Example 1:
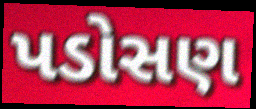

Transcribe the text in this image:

પડોસણ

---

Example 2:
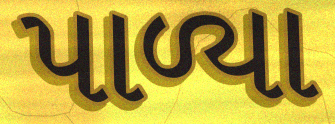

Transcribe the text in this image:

પાળ્યા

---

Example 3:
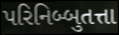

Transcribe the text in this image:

પરિનિબ્બુતત્તા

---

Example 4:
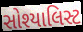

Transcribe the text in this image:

સોશ્યાલિસ્ટ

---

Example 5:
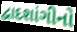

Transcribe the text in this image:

દ્વાદશાંગીનો